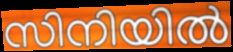
സിനിയിൽ